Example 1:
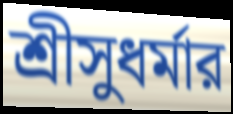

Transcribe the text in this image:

শ্রীসুধর্মার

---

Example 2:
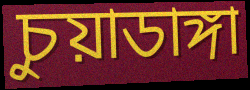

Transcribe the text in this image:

চুয়াডাঙ্গা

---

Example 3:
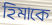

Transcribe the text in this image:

হিমাকে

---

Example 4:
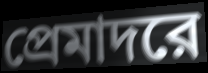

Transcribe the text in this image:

প্রেমাদরে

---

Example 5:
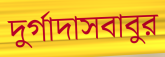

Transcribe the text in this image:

দুর্গাদাসবাবুর